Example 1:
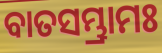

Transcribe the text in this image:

ବାତସମ୍ଭ୍ରାମଃ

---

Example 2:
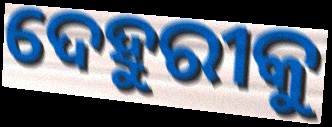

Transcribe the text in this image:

ଦେହୁରୀକୁ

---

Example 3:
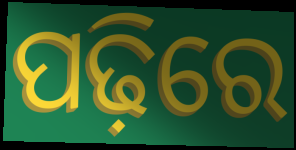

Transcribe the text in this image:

ପଢ଼ିରେ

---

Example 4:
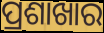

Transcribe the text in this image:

ପ୍ରଶାଖାର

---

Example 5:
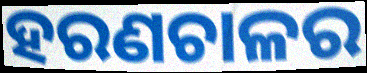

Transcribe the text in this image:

ହରଣଚାଳର